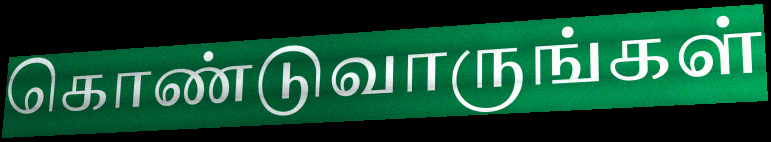
கொண்டுவாருங்கள்